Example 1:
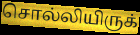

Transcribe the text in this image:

சொல்லியிருக்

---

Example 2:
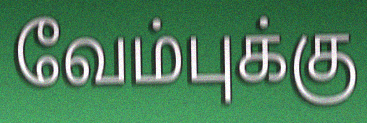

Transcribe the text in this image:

வேம்புக்கு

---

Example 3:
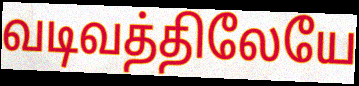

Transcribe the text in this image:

வடிவத்திலேயே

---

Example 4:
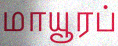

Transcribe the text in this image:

மாயூரப்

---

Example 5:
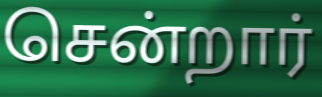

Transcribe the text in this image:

சென்றார்